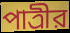
পাত্রীর